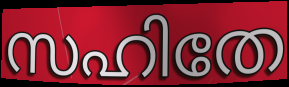
സഹിതേ